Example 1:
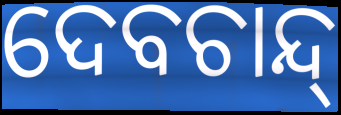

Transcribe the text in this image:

ଦେବଚାନ୍ଦ୍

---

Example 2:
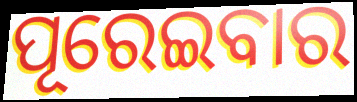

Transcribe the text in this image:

ପୂରେଇବାର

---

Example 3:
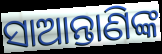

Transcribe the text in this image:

ସାଆନ୍ତାଣିଙ୍କ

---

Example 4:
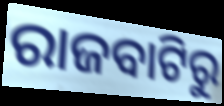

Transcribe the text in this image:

ରାଜବାଟିରୁ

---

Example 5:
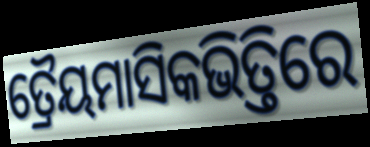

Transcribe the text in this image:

ତ୍ରୈୟମାସିକଭିତ୍ତିରେ